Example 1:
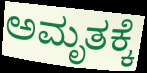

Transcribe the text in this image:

ಅಮೃತಕ್ಕೆ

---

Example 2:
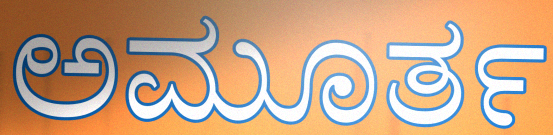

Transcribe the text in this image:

ಅಮೂರ್ತ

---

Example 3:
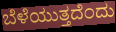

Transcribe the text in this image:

ಬೆಳೆಯುತ್ತದೆಂದು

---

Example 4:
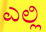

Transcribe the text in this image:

ಎಲ್ಲಿ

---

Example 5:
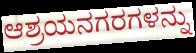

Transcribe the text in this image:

ಆಶ್ರಯನಗರಗಳನ್ನು